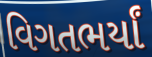
વિગતભર્યાં